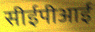
सीईपीआई